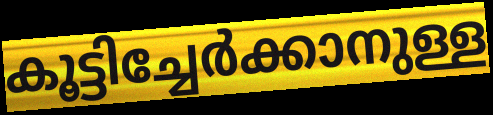
കൂട്ടിച്ചേർക്കാനുള്ള